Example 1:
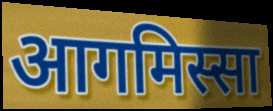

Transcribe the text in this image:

आगमिस्सा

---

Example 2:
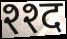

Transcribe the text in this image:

श्श्द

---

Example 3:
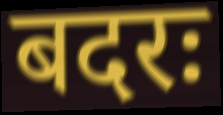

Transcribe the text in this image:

बदरः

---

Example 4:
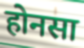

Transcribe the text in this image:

होनसा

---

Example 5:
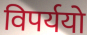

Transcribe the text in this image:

विपर्ययो